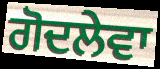
ਗੋਦਲੇਵਾ